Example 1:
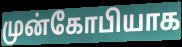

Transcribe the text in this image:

முன்கோபியாக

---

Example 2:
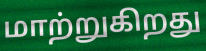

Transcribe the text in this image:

மாற்றுகிறது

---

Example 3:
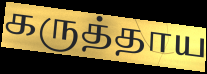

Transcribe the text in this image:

கருத்தாய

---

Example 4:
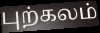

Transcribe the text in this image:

புற்கலம்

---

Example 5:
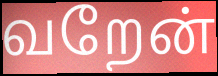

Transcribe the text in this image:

வறேன்